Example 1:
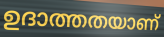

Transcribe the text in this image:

ഉദാത്തതയാണ്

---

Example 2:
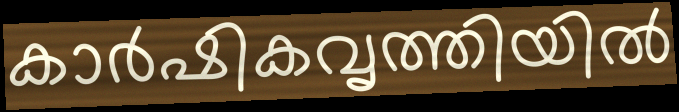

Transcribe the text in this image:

കാർഷികവൃത്തിയിൽ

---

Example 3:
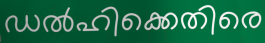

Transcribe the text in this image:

ഡൽഹിക്കെതിരെ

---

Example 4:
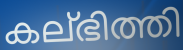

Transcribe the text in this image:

കല്ഭിത്തി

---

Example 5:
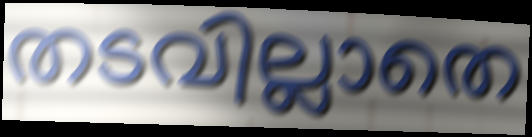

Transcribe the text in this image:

തടവില്ലാതെ